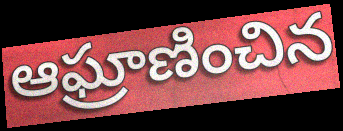
ఆఘ్రాణించిన